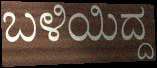
ಬಳಿಯಿದ್ದ